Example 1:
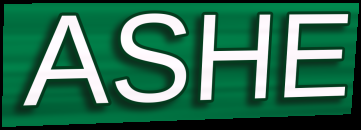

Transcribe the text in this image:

ASHE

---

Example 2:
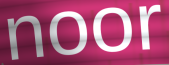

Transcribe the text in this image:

noor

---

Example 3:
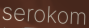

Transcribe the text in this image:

serokom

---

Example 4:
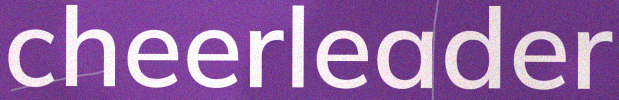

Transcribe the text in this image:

cheerleader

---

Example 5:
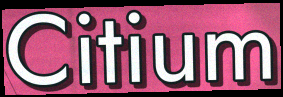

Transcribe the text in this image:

Citium